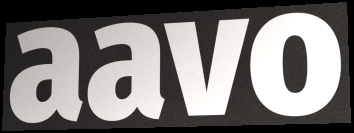
aavo